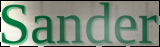
Sander